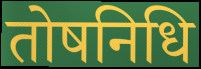
तोषनिधि